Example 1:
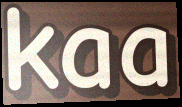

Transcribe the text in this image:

kaa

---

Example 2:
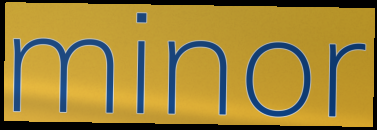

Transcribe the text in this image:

minor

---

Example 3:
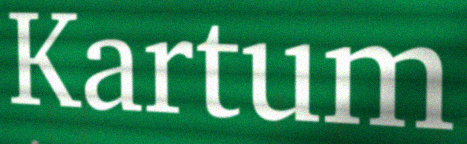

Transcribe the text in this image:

Kartum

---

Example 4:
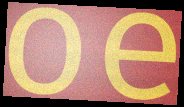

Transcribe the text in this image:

oe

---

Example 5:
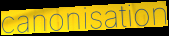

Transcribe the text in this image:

canonisation